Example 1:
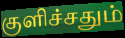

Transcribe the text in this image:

குளிச்சதும்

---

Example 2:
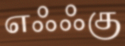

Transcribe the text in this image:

எஃஃகு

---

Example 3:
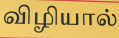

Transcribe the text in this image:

விழியால்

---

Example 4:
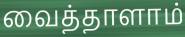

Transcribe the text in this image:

வைத்தாளாம்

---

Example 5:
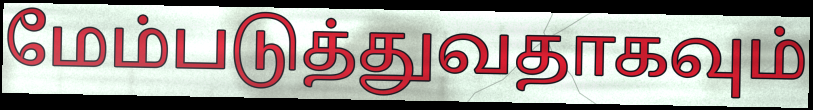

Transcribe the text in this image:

மேம்படுத்துவதாகவும்